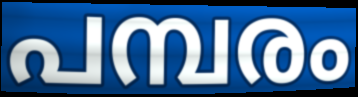
പമ്പരം